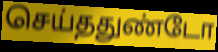
செய்ததுண்டோ